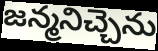
జన్మనిచ్చెను